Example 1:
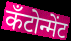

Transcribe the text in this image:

कँटोन्मेंट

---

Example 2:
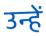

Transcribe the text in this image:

उन्हें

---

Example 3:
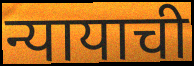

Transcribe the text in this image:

न्यायाची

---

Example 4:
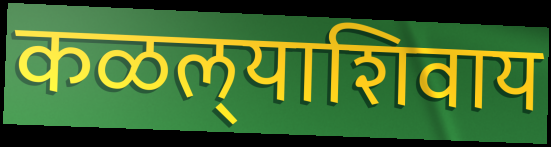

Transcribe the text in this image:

कळल्याशिवाय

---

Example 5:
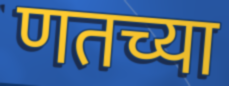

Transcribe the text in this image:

णतच्या